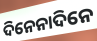
ଦିନେନାଦିନେ